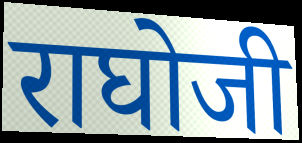
राघोजी